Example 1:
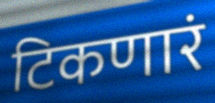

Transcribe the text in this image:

टिकणारं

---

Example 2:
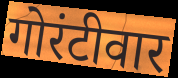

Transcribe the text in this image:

गोरंटीवार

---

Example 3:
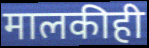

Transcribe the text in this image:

मालकीही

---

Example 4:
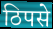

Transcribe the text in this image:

ठिपसे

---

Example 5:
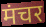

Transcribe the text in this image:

मंचर